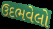
ઉદભવેલો